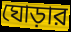
ঘোড়ার